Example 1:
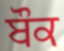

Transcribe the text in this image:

ਬੌਕ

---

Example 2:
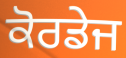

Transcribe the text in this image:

ਕੋਰਡੇਜ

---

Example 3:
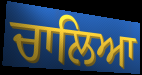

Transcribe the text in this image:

ਚਾਲਿਆ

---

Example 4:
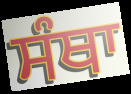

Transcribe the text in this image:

ਸੰਥਾ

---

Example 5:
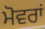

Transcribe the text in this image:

ਮੋਵਰਾਂ